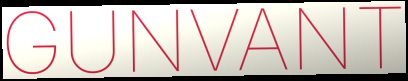
GUNVANT